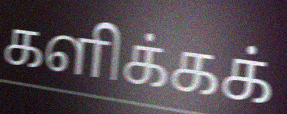
களிக்கக்